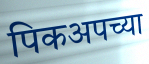
पिकअपच्या